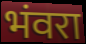
भंवरा